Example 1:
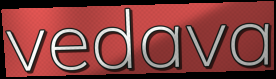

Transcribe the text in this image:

vedava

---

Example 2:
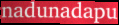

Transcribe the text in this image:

nadunadapu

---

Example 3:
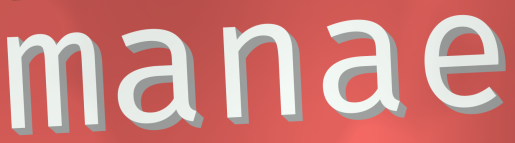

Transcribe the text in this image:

manae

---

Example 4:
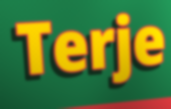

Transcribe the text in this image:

Terje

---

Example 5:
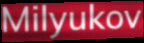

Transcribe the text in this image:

Milyukov